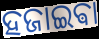
ହଜାଇଵା